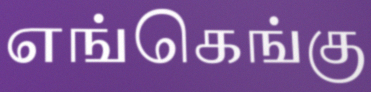
எங்கெங்கு